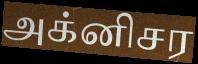
அக்னிசர